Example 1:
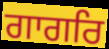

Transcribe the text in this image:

ਗਾਗਰਿ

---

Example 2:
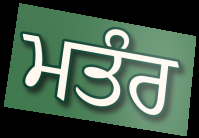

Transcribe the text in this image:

ਮਤੰਰ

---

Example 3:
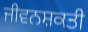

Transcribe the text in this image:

ਜੀਵਨਸ਼ਕਤੀ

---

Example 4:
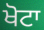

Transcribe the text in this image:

ਖੋਟਾ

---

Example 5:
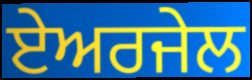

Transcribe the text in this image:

ਏਅਰਜੇਲ